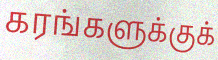
கரங்களுக்குக்